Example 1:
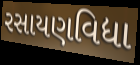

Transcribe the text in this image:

રસાયણવિદ્યા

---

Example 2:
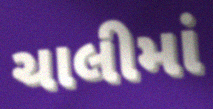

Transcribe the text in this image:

ચાલીમાં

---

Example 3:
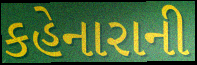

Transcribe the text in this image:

કહેનારાની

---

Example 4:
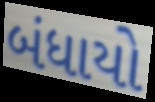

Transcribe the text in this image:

બંધાયો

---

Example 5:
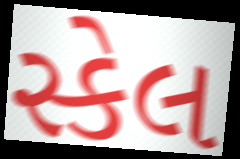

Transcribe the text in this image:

સ્કેલ